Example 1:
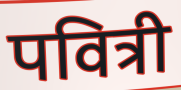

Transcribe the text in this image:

पवित्री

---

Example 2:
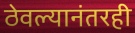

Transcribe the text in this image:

ठेवल्यानंतरही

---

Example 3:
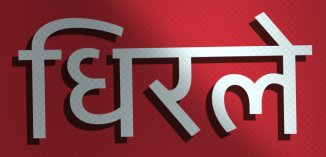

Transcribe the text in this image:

धिरले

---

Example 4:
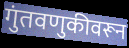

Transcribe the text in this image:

गुंतवणुकीवरून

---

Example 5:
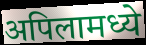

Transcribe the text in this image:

अपिलामध्ये